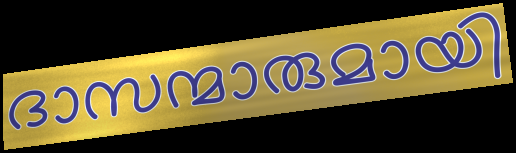
ദാസന്മാരുമായി